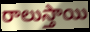
రాలుస్తాయి